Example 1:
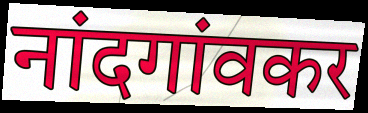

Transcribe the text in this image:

नांदगांवकर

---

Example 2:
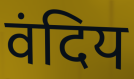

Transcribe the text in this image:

वंदिय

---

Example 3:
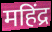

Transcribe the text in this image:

महिंद्र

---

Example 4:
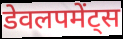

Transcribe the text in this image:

डेवलपमेंट्स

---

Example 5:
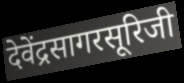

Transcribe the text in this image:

देवेंद्रसागरसूरिजी